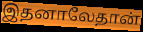
இதனாலேதான்